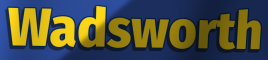
Wadsworth